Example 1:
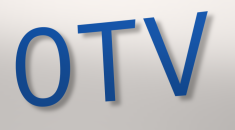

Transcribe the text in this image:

OTV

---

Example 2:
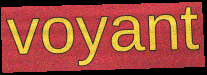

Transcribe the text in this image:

voyant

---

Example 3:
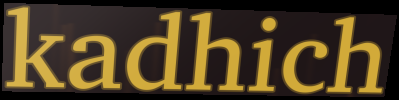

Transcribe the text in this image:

kadhich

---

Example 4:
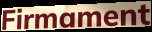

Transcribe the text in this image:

Firmament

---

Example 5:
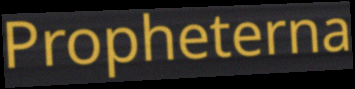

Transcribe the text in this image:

Propheterna